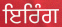
ਇਰਿੰਗ